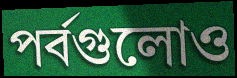
পর্বগুলোও